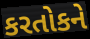
કરતોકને